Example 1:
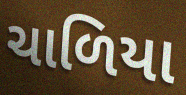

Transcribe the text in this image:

ચાળિયા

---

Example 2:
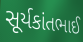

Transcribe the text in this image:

સૂર્યકાંતભાઈ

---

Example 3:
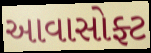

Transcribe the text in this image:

આવાસોફ્ટ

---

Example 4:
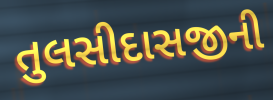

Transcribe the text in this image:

તુલસીદાસજીની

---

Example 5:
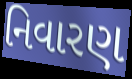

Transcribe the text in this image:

નિવારણ